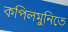
কপিলমুনিতে